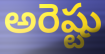
అరెష్టు